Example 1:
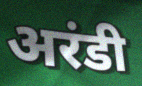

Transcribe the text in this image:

अरंडी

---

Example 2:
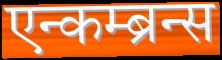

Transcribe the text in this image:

एन्कम्ब्रन्स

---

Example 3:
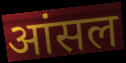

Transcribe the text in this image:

आंसल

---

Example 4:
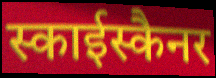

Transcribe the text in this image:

स्काईस्कैनर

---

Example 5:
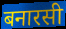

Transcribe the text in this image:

बनारसी